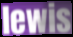
lewis